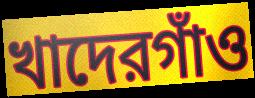
খাদেরগাঁও